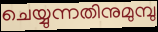
ചെയ്യുന്നതിനുമുമ്പു